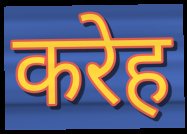
करेह